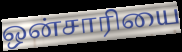
ஒன்சாரியை